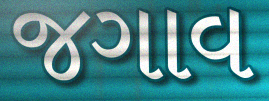
જગાવ